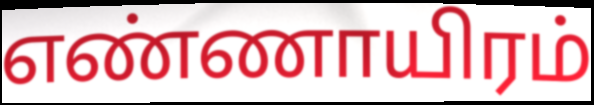
எண்ணாயிரம்